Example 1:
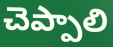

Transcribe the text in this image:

చెప్పాలి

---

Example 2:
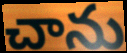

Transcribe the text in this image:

చాను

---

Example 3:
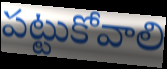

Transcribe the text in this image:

పట్టుకోవాలి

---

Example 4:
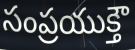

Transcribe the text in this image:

సంప్రయుక్తౌ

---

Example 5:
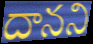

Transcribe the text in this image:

దానని